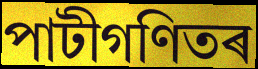
পাটীগণিতৰ